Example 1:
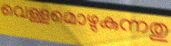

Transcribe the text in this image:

വെള്ളമൊഴുകുന്നതു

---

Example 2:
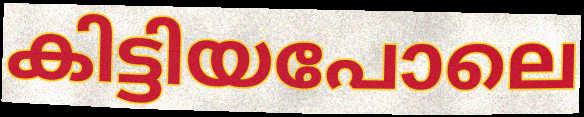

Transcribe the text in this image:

കിട്ടിയപോലെ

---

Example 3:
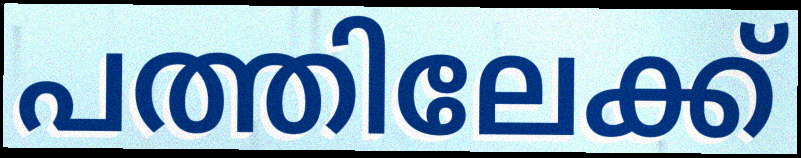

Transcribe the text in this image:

പത്തിലേക്ക്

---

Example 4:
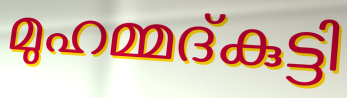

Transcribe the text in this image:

മുഹമ്മദ്കുട്ടി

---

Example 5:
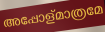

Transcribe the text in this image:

അപ്പോള്മാത്രമേ